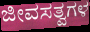
ಜೀವಸತ್ವಗಳ